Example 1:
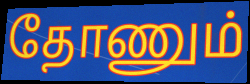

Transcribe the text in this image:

தோணும்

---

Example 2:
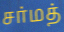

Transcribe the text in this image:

சர்மத்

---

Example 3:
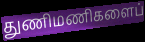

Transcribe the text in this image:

துணிமணிகளைப்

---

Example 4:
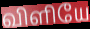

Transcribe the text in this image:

விளியே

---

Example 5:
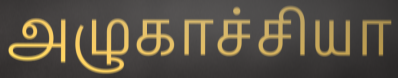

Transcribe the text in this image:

அழுகாச்சியா